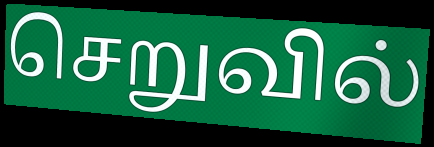
செறுவில்